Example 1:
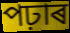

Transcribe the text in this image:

পঢ়াৰ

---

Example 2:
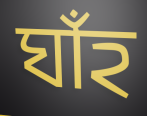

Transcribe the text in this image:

ঘাঁহ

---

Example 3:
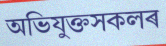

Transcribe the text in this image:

অভিযুক্তসকলৰ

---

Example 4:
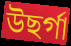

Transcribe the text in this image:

উছৰ্গা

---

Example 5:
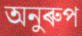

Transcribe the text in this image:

অনুৰুপ